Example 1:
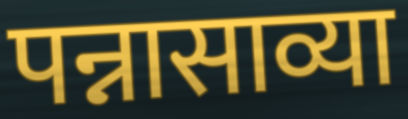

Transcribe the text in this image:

पन्नासाव्या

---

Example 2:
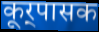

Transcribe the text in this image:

कूर्पासक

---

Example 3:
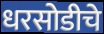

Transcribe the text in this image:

धरसोडीचे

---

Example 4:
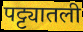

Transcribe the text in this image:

पट्ट्यातली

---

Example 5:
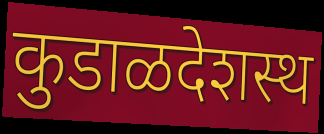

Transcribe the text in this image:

कुडाळदेशस्थ